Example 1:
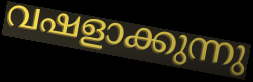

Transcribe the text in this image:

വഷളാക്കുന്നു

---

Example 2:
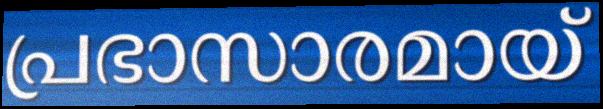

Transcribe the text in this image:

പ്രഭാസാരമായ്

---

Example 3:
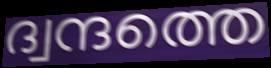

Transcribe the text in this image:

ദ്വന്ദത്തെ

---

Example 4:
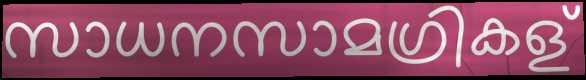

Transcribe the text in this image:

സാധനസാമഗ്രികള്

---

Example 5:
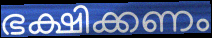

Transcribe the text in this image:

ഭക്ഷിക്കണം